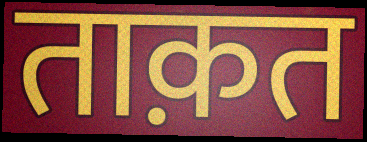
ताक़त